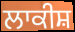
ਲਾਕੀਸ਼